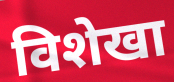
विशेखा